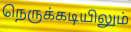
நெருக்கடியிலும்